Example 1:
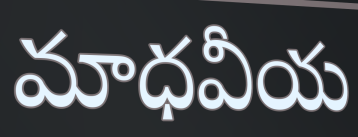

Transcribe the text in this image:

మాధవీయ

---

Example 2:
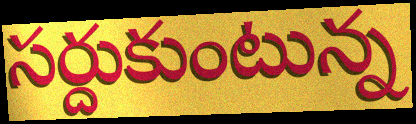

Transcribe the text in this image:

సర్దుకుంటున్న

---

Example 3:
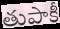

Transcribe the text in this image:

తుపాకీ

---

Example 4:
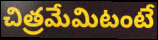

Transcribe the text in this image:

చిత్రమేమిటంటే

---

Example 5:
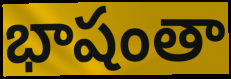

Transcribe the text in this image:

భాషంతా